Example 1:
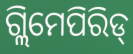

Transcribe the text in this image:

ଗ୍ଲିମେପିରିଡ୍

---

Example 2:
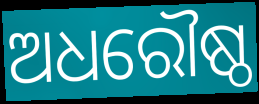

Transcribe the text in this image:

ଅଧରୌଷ୍ଠ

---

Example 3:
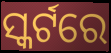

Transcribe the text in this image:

ସ୍କର୍ଟରେ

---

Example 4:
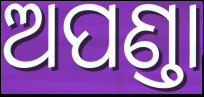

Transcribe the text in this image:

ଅପଣ୍ଡା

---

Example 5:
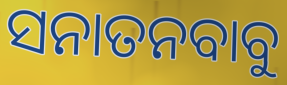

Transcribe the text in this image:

ସନାତନବାବୁ